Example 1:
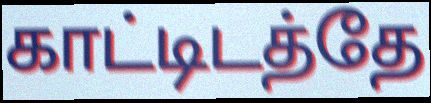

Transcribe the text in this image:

காட்டிடத்தே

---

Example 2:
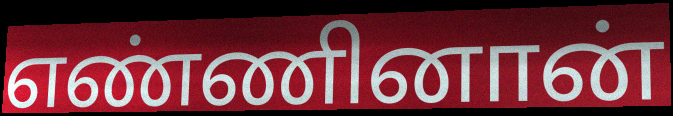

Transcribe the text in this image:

எண்ணினான்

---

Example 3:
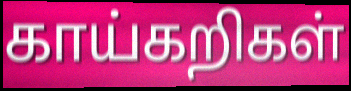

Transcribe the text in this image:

காய்கறிகள்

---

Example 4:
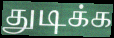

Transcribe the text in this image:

துடிக்க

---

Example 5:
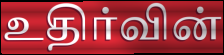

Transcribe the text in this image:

உதிர்வின்